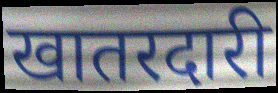
खातरदारी